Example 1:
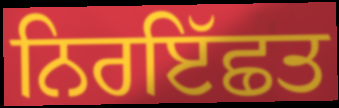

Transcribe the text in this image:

ਨਿਰਇੱਛਤ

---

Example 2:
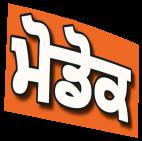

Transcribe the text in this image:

ਮੋਡੋਕ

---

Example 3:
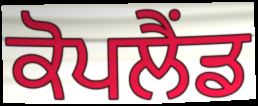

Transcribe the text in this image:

ਕੋਪਲੈਂਡ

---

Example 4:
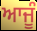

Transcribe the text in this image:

ਆਜੂੰ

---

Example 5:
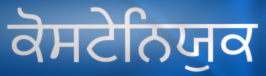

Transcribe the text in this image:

ਕੋਸਟੇਨਿਯੁਕ